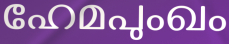
ഹേമപുംഖം